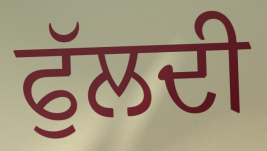
ਫੁੱਲਦੀ